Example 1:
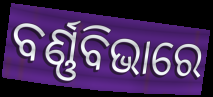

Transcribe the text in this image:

ବର୍ଣ୍ଣବିଭାରେ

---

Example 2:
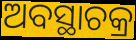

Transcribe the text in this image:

ଅବସ୍ଥାଚକ୍ର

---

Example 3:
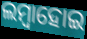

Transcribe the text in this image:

ଲମ୍ୱାହୋଇ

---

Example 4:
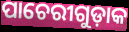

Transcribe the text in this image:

ପାଚେରୀଗୁଡ଼ାକ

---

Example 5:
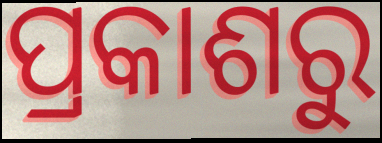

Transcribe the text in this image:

ପ୍ରକାଶରୁ